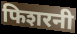
फिशरनी